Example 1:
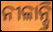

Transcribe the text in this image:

ନୀଳାନ୍ଦ୍ରି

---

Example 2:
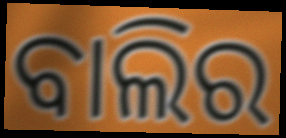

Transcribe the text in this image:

ବାଲିର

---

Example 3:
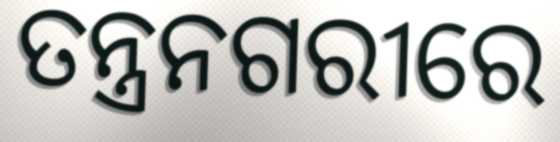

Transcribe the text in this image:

ତନ୍ତ୍ରନଗରୀରେ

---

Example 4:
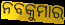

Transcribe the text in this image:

ନବକୁମାର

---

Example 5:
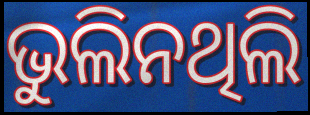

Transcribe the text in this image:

ଭୁଲିନଥିଲି